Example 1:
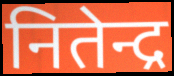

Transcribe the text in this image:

नितेन्द्र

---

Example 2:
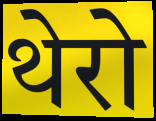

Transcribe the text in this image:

थेरो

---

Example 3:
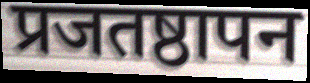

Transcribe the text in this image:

प्रजतष्ठापन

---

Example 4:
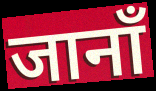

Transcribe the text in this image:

जानाँ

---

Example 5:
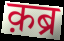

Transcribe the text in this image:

क़ब्र